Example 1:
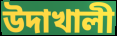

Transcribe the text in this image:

উদাখালী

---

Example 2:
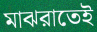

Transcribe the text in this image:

মাঝরাতেই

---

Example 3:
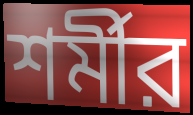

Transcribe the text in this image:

শর্মীর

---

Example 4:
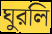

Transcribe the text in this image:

ঘুরলি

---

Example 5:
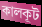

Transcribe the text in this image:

কালকূট